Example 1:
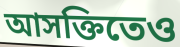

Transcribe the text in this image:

আসক্তিতেও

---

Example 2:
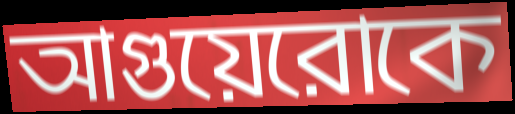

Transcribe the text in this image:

আগুয়েরোকে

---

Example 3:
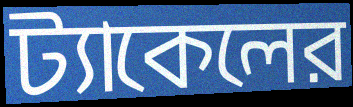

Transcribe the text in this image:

ট্যাকেলের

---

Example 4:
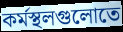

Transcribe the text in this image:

কর্মস্থলগুলোতে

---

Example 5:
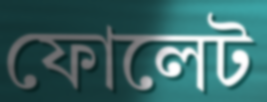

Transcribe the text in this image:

ফোলেট